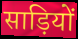
साड़ियों